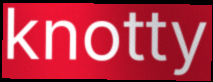
knotty